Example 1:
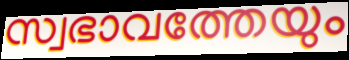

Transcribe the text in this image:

സ്വഭാവത്തേയും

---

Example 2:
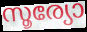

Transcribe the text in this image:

സൂര്യോ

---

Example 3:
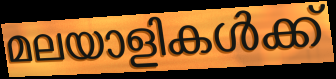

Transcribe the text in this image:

മലയാളികൾക്ക്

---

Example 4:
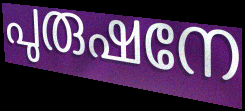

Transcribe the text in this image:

പുരുഷനേ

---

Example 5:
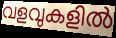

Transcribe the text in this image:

വളവുകളിൽ